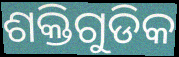
ଶକ୍ତିଗୁଡିକ